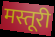
मस्तूरी